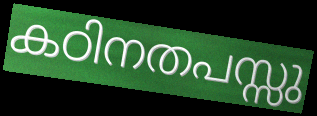
കഠിനതപസ്സു